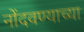
नोंदवण्याच्या